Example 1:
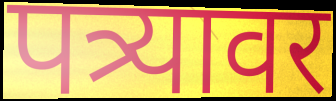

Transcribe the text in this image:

पत्र्यावर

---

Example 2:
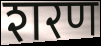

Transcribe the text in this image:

शरण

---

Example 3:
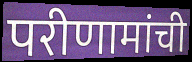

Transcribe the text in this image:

परीणामांची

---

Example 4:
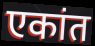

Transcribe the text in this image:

एकांत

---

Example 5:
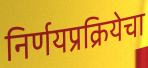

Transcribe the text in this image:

निर्णयप्रक्रियेचा